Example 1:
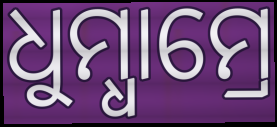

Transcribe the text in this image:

ଧୁମ୍ଧାମ୍ରେ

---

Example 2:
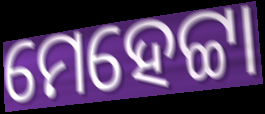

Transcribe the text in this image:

ମେହେଟ୍ଟା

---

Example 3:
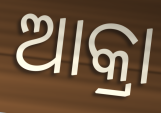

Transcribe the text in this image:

ଆକ୍ରା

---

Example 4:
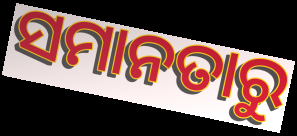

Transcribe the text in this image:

ସମାନତାରୁ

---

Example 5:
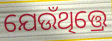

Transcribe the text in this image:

ଯେଉଁଥିତ୍ତ୍ରେ